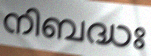
നിബദ്ധഃ